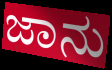
ಜಾನು